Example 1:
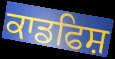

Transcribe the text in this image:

ਕਾਡਫਿਸ਼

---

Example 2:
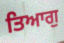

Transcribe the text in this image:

ਤਿਆਗੁ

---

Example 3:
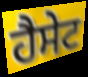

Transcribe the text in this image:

ਹੈਸੇਟ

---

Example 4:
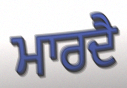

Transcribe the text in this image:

ਮਾਰਦੈ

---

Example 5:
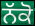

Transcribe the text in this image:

ਨੱਕੋ